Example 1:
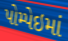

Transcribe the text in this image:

પોમ્પેઇમાં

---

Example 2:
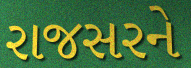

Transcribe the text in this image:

રાજસરને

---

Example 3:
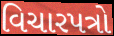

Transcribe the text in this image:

વિચારપત્રો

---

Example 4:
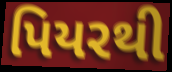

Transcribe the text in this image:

પિયરથી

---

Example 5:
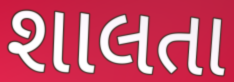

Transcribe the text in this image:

શાલતા